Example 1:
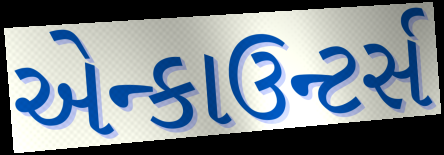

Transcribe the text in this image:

એન્કાઉન્ટર્સ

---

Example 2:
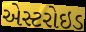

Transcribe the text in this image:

એસ્ટરોઇડ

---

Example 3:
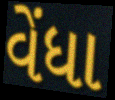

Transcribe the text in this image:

વેંધા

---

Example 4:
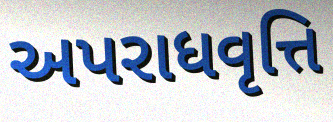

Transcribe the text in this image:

અપરાધવૃત્તિ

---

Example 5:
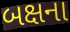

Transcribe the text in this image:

બક્ષના